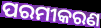
ପରମୀକରଣ